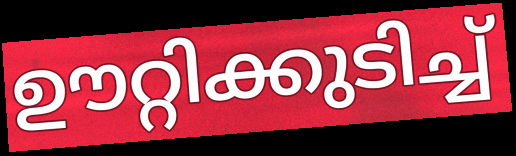
ഊറ്റിക്കുടിച്ച്